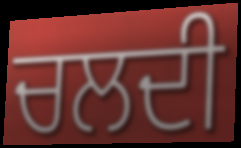
ਚਲਦੀ